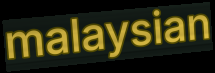
malaysian